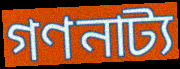
গণনাট্য